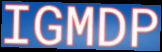
IGMDP